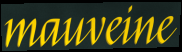
mauveine